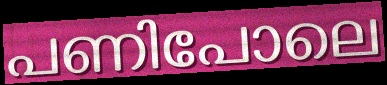
പണിപോലെ